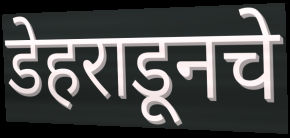
डेहराडूनचे